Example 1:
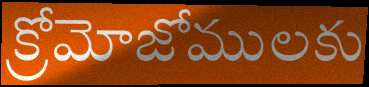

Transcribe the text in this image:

క్రోమోజోములకు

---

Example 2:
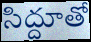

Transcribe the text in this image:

సిద్దూతో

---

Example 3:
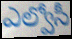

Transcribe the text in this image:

ఎల్వోసీ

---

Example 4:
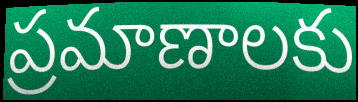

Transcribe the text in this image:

ప్రమాణాలకు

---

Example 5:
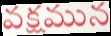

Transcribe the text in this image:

వక్షమున